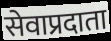
सेवाप्रदाता